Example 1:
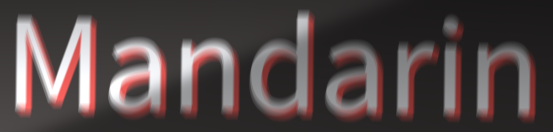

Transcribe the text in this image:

Mandarin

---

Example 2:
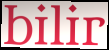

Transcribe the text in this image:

bilir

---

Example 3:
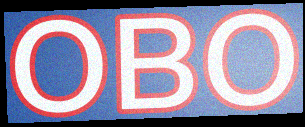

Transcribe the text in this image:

OBO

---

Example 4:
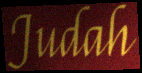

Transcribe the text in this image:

Judah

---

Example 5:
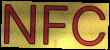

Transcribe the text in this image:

NFC